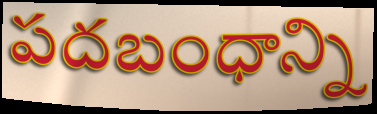
పదబంధాన్ని